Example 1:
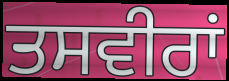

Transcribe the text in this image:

ਤਸਵੀਰਾਂ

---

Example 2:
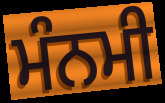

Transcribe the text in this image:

ਮੰਨਮੀ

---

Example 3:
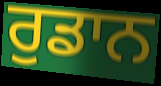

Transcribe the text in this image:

ਰੁਡਾਨ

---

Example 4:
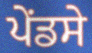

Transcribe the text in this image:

ਪੇਂਡਸੇ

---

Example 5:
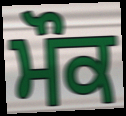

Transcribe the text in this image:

ਮੌਕ